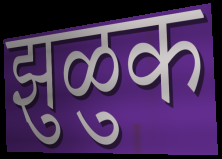
झुळुक